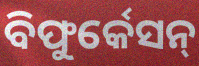
ବିଫୁର୍କେସନ୍